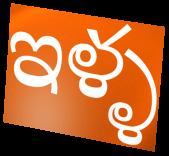
ఇళ్ళ